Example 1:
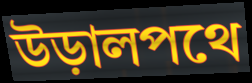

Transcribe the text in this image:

উড়ালপথে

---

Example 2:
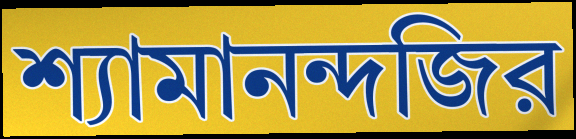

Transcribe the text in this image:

শ্যামানন্দজির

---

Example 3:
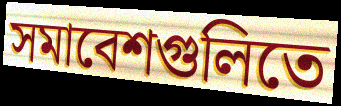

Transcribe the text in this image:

সমাবেশগুলিতে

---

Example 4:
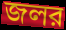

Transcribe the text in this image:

জলর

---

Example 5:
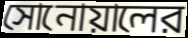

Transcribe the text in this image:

সোনোয়ালের